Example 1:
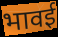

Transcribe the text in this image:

भावई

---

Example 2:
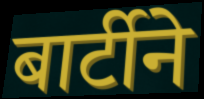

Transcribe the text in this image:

बार्टीने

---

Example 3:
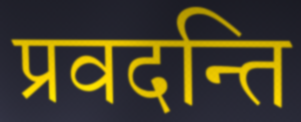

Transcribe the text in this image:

प्रवदन्ति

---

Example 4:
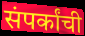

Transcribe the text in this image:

संपर्कांची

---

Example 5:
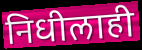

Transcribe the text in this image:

निधीलाही